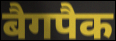
बैगपैक